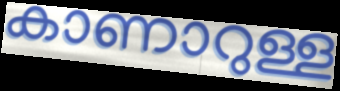
കാണാറുള്ള